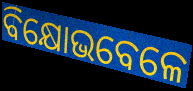
ବିକ୍ଷୋଭବେଳେ